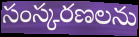
సంస్కరణలను